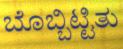
ಬೊಬ್ಬಿಟ್ಟಿತು